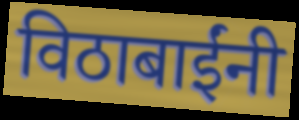
विठाबाईंनी